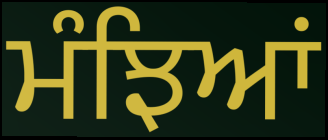
ਮੰਝਿਆਂ